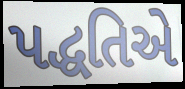
પદ્ધતિએ